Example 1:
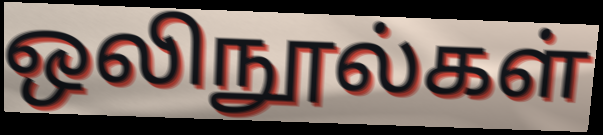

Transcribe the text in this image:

ஒலிநூல்கள்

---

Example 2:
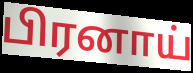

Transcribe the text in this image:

பிரனாய்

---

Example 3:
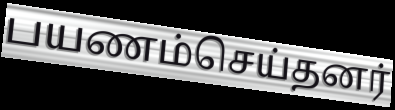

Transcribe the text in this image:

பயணம்செய்தனர்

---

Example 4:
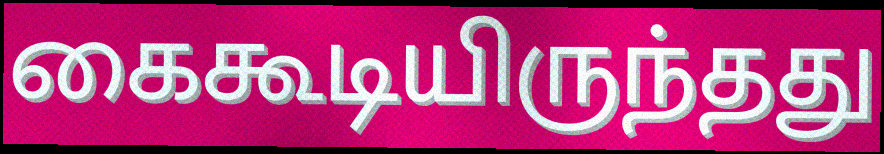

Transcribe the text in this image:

கைகூடியிருந்தது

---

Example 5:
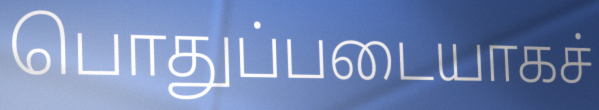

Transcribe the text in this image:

பொதுப்படையாகச்